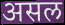
असल